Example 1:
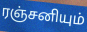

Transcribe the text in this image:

ரஞ்சனியும்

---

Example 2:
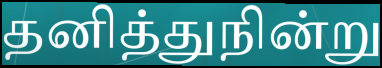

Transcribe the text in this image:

தனித்துநின்று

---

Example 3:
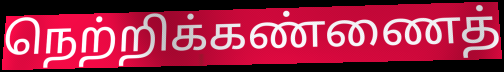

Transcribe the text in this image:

நெற்றிக்கண்ணைத்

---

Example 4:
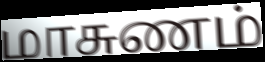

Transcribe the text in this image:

மாசுணம்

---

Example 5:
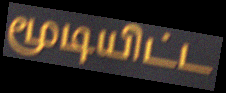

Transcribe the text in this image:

மூடியிட்ட